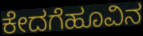
ಕೇದಗೆಹೂವಿನ